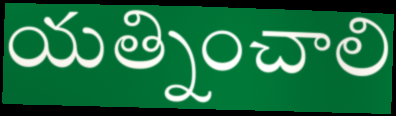
యత్నించాలి